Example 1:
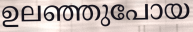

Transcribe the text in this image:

ഉലഞ്ഞുപോയ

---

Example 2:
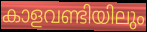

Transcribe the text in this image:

കാളവണ്ടിയിലും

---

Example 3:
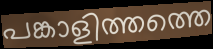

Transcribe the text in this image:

പങ്കാളിത്തത്തെ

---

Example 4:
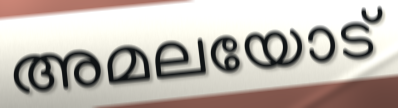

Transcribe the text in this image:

അമലയോട്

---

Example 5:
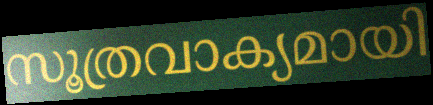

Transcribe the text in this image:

സൂത്രവാക്യമായി